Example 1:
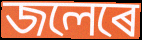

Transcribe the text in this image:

জলেৰে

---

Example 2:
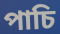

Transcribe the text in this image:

পাচি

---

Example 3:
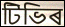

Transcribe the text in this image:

টিভিৰ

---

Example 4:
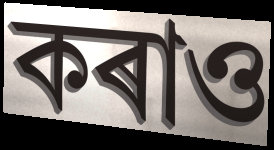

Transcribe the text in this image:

কৰাও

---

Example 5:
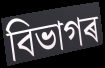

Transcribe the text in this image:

বিভাগৰ